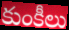
కుంకీలు